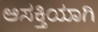
ಆಸಕ್ತಿಯಾಗಿ